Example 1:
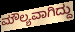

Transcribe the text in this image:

ಮೌಲ್ಯವಾಗಿದ್ದು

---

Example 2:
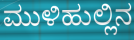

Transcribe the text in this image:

ಮುಳಿಹುಲ್ಲಿನ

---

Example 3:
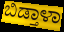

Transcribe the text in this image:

ಬಿಡ್ತಾಳಾ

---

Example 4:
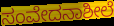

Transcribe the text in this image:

ಸಂವೇದನಾಶೀಲೆ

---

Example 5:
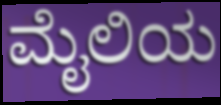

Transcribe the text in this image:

ಮೈಲಿಯ